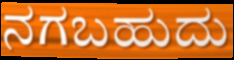
ನಗಬಹುದು